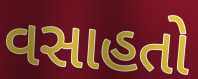
વસાહતો